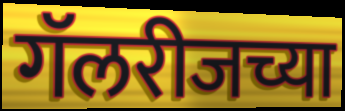
गॅलरीजच्या